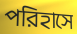
পরিহাসে